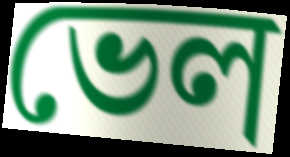
ভেল